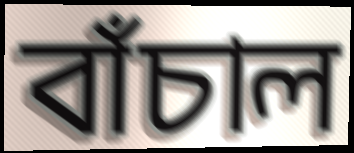
বাঁচাল